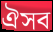
ঐসব